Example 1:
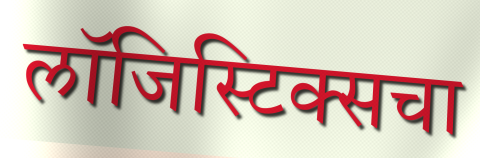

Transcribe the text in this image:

लॉजिस्टिक्सचा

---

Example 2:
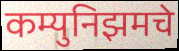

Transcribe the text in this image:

कम्युनिझमचे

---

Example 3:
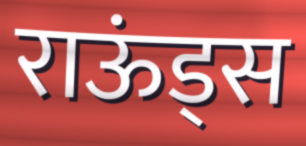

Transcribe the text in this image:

राऊंड्स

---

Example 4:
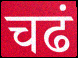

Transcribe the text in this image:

चढं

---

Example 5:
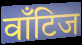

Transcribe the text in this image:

वाँटिज